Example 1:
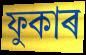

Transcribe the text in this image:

ফুকাৰ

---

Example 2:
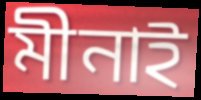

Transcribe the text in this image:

মীনাই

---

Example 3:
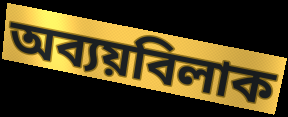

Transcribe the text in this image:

অব্যয়বিলাক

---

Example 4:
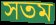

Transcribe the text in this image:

সতম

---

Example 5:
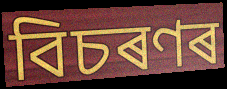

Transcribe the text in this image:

বিচৰণৰ